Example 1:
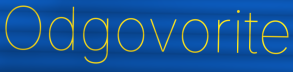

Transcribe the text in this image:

Odgovorite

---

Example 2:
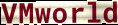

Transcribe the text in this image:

VMworld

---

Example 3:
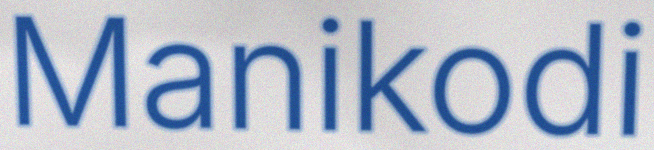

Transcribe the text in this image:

Manikodi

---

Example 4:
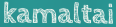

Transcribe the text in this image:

kamaltai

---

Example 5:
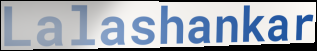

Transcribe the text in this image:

Lalashankar